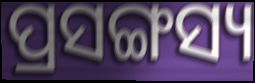
ପ୍ରସଙ୍ଗସ୍ୟ